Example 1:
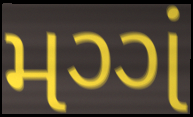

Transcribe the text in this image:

મગ્ગં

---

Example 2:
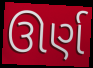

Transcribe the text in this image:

ઊર્ણ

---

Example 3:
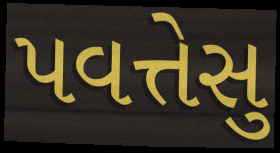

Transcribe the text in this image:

પવત્તેસુ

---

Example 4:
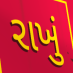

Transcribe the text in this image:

રાખું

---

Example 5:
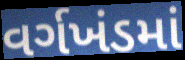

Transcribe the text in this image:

વર્ગખંડમાં